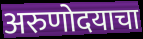
अरुणोदयाचा